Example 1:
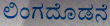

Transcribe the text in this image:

ಲಿಂಗದೊಡನೆ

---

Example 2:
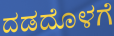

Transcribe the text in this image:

ದಡದೊಳಗೆ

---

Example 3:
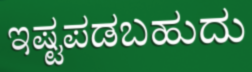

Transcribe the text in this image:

ಇಷ್ಟಪಡಬಹುದು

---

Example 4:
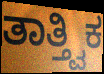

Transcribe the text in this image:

ತಾತ್ತ್ವಿಕ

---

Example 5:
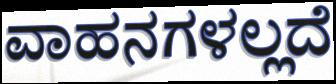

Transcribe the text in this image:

ವಾಹನಗಳಲ್ಲದೆ